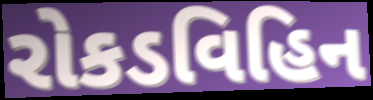
રોકડવિહિન